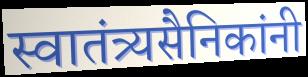
स्वातंत्र्यसैनिकांनी